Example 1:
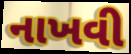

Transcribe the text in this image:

નાખવી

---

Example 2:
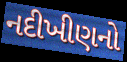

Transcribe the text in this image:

નદીખીણનો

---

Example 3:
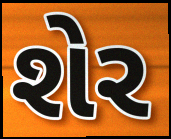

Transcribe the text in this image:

શેર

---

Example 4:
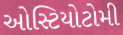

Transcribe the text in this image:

ઓસ્ટિયોટોમી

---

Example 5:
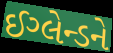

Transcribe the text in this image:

ઈગ્લેન્ડને